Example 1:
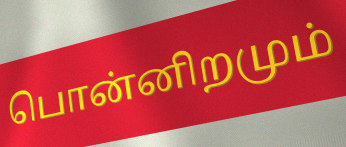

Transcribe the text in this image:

பொன்னிறமும்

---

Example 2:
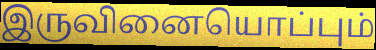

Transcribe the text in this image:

இருவினையொப்பும்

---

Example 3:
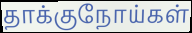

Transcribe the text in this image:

தாக்குநோய்கள்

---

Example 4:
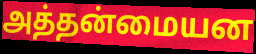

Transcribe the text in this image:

அத்தன்மையன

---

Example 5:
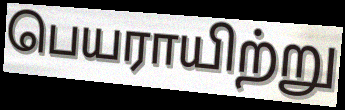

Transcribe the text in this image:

பெயராயிற்று